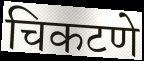
चिकटणे